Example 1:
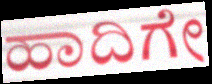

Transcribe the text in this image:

ಹಾದಿಗೇ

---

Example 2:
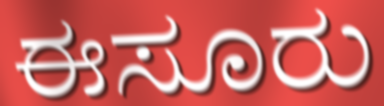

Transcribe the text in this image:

ಈಸೂರು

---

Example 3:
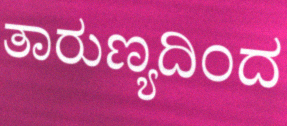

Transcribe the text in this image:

ತಾರುಣ್ಯದಿಂದ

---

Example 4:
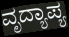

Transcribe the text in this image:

ವೃದ್ಯಾಪ್ಯ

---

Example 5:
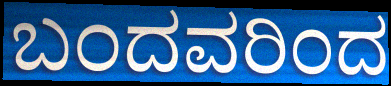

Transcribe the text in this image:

ಬಂದವರಿಂದ